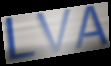
LVA